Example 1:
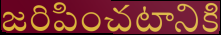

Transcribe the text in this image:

జరిపించటానికి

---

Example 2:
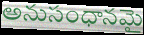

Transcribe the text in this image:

అనుసంధానమై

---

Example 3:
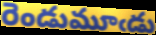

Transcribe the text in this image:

రెండుమూఁడు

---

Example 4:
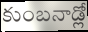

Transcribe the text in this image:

కుంబనాడ్లో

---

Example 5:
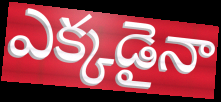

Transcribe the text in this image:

ఎక్కడైనా